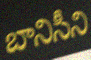
బానిసీని